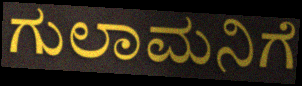
ಗುಲಾಮನಿಗೆ